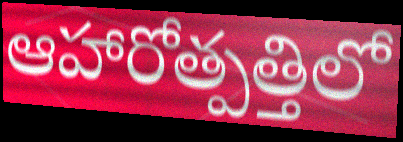
ఆహారోత్పత్తిలో